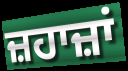
ਜ਼ਹਾਜ਼ਾਂ